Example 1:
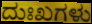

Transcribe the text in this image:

ದುಃಖಗಳು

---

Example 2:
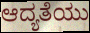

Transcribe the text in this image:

ಆದ್ಯತೆಯು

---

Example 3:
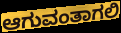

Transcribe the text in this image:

ಆಗುವಂತಾಗಲಿ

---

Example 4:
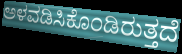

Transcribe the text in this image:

ಅಳವಡಿಸಿಕೊಂಡಿರುತ್ತದೆ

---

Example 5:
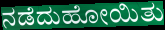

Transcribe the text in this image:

ನಡೆದುಹೋಯಿತು